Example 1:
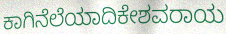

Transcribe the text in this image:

ಕಾಗಿನೆಲೆಯಾದಿಕೇಶವರಾಯ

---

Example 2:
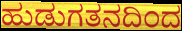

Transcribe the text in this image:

ಹುಡುಗತನದಿಂದ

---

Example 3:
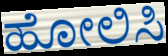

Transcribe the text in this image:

ಹೋಲಿಸಿ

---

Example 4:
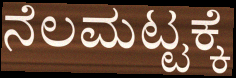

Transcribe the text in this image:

ನೆಲಮಟ್ಟಕ್ಕೆ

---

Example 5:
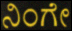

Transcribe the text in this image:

ನಿಂಗೇ